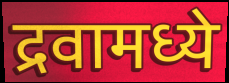
द्रवामध्ये